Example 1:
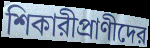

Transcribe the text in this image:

শিকারীপ্রাণীদের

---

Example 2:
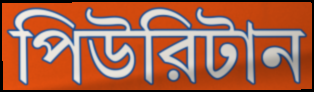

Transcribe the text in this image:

পিউরিটান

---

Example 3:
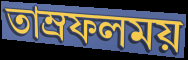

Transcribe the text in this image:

তাম্রফলময়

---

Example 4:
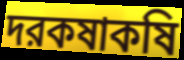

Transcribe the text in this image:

দরকষাকষি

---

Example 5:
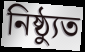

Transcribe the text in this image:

নিষ্ঠ্যুত